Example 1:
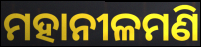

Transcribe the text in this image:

ମହାନୀଳମଣି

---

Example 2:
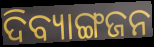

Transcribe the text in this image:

ଦିବ୍ୟାଙ୍ଗଜନ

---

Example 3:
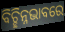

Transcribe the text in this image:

ବିଚ୍ଛିନ୍ନଭାବରେ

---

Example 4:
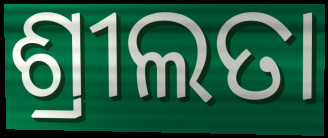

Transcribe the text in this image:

ଶ୍ରୀଲତା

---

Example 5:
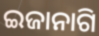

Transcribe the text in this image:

ଇଜାନାଗି